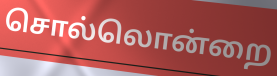
சொல்லொன்றை